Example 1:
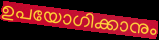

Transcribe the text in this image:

ഉപയോഗിക്കാനും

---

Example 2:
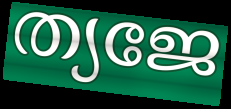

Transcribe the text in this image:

ത്യജേ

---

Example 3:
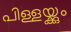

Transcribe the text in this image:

പിള്ളയ്ക്കും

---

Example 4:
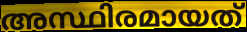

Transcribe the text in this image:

അസ്ഥിരമായത്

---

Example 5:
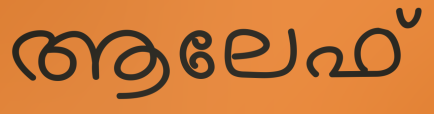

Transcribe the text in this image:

ആലേഫ്